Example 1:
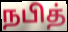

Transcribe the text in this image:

நபித்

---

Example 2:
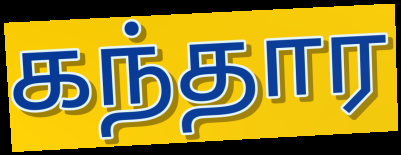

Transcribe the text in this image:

கந்தார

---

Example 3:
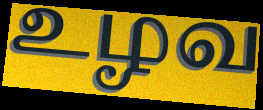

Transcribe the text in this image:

உழவ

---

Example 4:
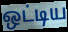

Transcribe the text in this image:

ஒட்டிய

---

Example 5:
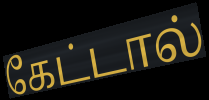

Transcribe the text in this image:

கேட்டால்